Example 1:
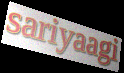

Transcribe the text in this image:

sariyaagi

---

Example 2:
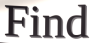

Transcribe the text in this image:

Find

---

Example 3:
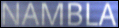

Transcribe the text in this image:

NAMBLA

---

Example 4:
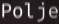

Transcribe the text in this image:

Polje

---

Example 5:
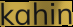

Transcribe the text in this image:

kahin